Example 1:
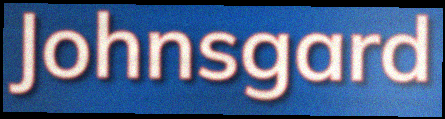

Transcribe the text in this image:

Johnsgard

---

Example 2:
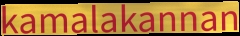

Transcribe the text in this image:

kamalakannan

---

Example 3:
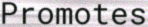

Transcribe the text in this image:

Promotes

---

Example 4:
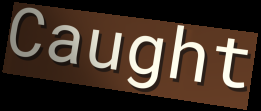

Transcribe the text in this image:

Caught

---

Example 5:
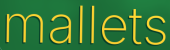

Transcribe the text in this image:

mallets